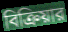
বিক্রিয়ার